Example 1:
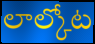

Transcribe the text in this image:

లాల్కోట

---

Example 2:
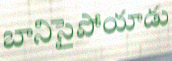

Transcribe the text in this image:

బానిసైపోయాడు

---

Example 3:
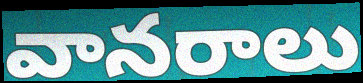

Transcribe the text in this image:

వానరాలు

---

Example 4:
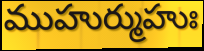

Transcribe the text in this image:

ముహుర్ముహుః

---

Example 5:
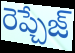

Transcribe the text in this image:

రెప్చేజ్